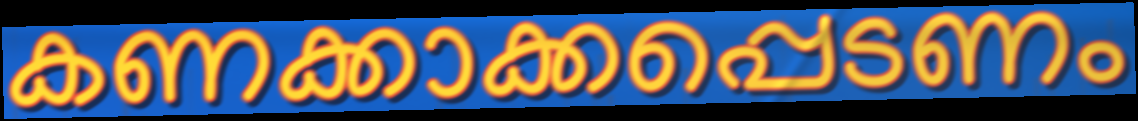
കണക്കാക്കപ്പെടണം